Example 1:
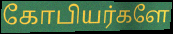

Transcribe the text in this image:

கோபியர்களே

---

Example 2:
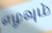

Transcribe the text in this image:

எழவும்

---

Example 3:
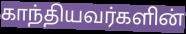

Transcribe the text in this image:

காந்தியவர்களின்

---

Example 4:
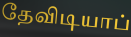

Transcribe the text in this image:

தேவிடியாப்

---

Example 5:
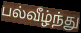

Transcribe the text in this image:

பல்வீழ்ந்து